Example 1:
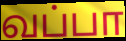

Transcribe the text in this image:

வப்பா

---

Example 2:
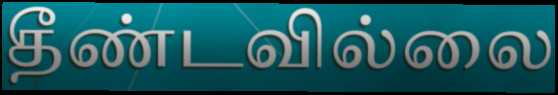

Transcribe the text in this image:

தீண்டவில்லை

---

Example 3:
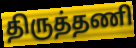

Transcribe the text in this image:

திருத்தணி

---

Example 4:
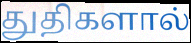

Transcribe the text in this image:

துதிகளால்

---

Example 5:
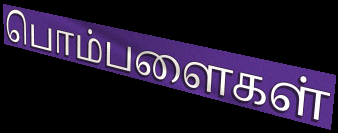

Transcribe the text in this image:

பொம்பளைகள்